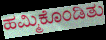
ಹಮ್ಮಿಕೊಂಡಿತು